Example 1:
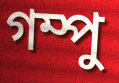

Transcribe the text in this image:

গম্পু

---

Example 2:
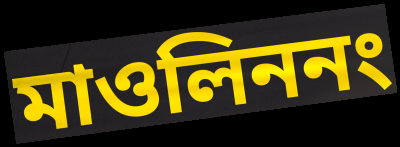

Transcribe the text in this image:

মাওলিননং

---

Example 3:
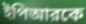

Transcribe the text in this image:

ইপিআরকে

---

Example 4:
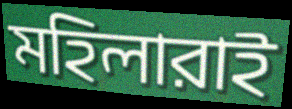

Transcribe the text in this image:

মহিলারাই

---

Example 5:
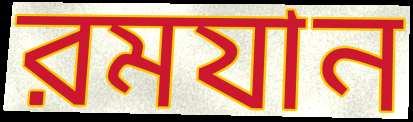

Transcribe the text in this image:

রমযান